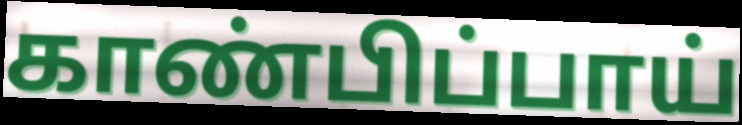
காண்பிப்பாய்